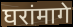
घरांमागे